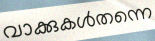
വാക്കുകൾതന്നെ